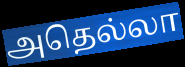
அதெல்லா